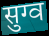
सुग्व